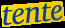
tente